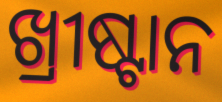
ଖ୍ରୀଷ୍ଟାନ